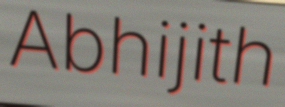
Abhijith